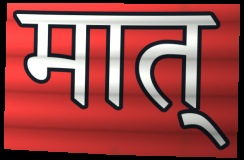
मात्